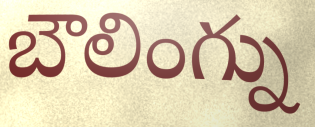
బౌలింగ్ను